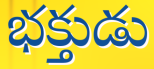
భక్తుడు